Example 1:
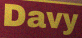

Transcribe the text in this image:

Davy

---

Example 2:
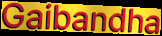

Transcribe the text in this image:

Gaibandha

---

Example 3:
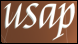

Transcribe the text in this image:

usap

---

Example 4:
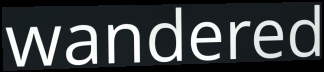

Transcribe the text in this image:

wandered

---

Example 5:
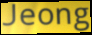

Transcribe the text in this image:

Jeong